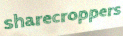
sharecroppers